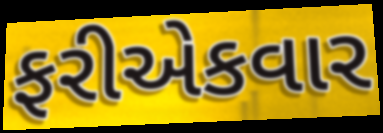
ફરીએકવાર